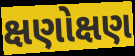
ક્ષણોક્ષણ